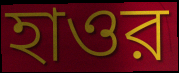
হাওর